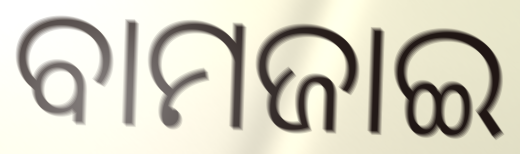
ବାମଜାଇ